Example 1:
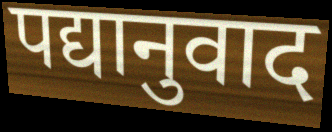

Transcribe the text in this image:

पद्यानुवाद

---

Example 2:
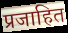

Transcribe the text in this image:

प्रजाहित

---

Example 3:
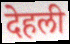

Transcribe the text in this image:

देहली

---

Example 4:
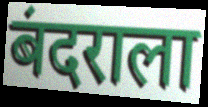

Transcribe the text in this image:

बंदराला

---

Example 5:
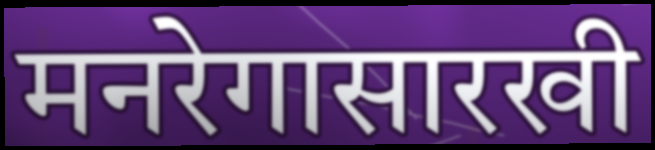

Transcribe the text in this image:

मनरेगासारखी